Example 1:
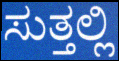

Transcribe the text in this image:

ಸುತ್ತಲ್ಲಿ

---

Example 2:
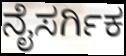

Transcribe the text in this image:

ನೈಸರ್ಗಿಕ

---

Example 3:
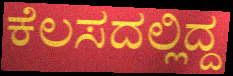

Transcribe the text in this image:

ಕೆಲಸದಲ್ಲಿದ್ದ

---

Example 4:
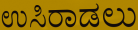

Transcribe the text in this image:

ಉಸಿರಾಡಲು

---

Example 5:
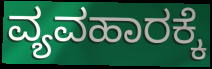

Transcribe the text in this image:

ವ್ಯವಹಾರಕ್ಕೆ